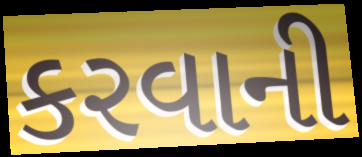
કરવાની